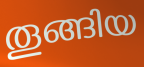
തൂങ്ങിയ